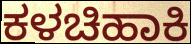
ಕಳಚಿಹಾಕಿ